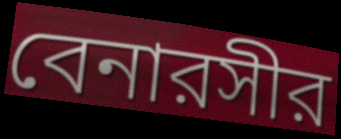
বেনারসীর